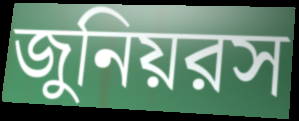
জুনিয়রস